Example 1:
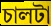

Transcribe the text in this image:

চালটা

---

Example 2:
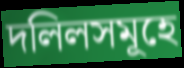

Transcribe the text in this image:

দলিলসমূহে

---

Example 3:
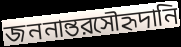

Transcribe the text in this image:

জননান্তরসৌহৃদানি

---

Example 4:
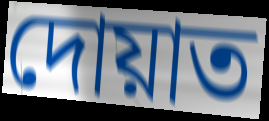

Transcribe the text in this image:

দোয়াত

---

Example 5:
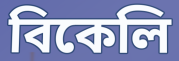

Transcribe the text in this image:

বিকেলি